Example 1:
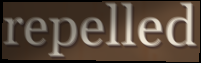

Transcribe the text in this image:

repelled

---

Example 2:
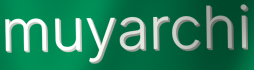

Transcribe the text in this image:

muyarchi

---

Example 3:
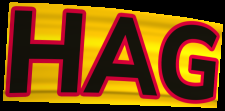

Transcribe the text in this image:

HAG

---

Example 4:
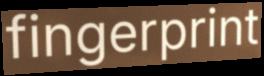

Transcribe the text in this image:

fingerprint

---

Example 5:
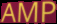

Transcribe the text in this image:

AMP